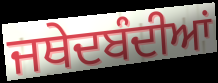
ਜਥੇਦਬੰਦੀਆਂ